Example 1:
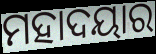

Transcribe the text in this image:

ମହାଦୟାର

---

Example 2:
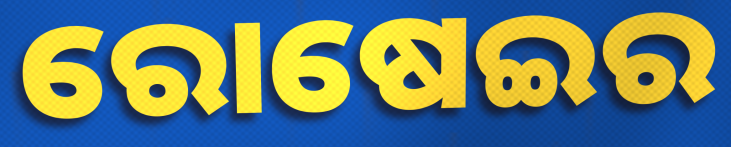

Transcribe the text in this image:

ରୋଷେଇର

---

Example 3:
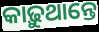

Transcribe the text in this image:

କାଢ଼ୁଥାନ୍ତେ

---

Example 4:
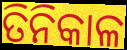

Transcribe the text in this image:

ତିନିକାଳ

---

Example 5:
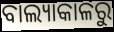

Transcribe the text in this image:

ବାଲ୍ୟାକାଳରୁ